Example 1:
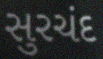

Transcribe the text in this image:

સુરચંદ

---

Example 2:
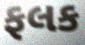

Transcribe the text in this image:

ફલક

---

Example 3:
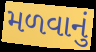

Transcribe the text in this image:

મળવાનું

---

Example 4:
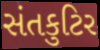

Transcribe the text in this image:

સંતકુટિર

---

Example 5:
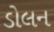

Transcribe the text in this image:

ડોલન